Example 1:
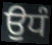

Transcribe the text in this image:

ਉਧੰ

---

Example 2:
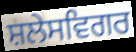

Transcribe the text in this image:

ਸ਼ਲੇਸਵਿਗਰ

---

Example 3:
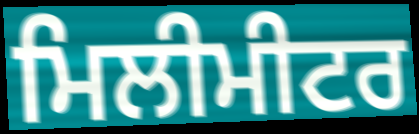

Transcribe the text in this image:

ਮਿਲੀਮੀਟਰ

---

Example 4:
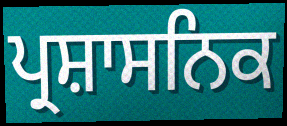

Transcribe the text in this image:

ਪ੍ਰਸ਼ਾਸਨਿਕ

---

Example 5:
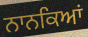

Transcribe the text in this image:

ਨਾਨਕਿਆਂ